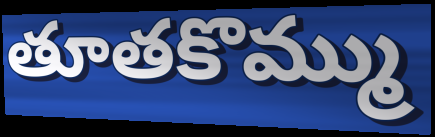
తూతకొమ్ము